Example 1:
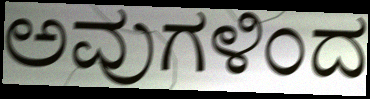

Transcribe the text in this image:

ಅವುಗಳಿಂದ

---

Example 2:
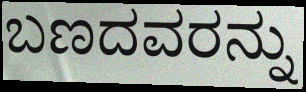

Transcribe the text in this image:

ಬಣದವರನ್ನು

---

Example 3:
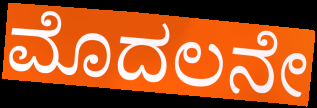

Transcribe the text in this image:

ಮೊದಲನೇ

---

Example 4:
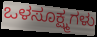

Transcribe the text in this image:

ಒಳಸೂಕ್ಷ್ಮಗಳು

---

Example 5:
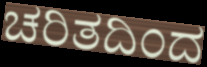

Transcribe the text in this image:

ಚರಿತದಿಂದ